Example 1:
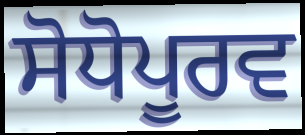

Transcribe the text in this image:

ਸੋਧੋਪੂਰਵ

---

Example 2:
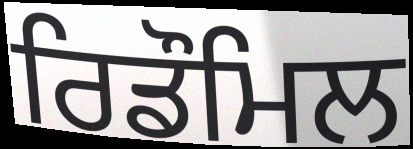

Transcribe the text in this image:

ਰਿਡੌਮਿਲ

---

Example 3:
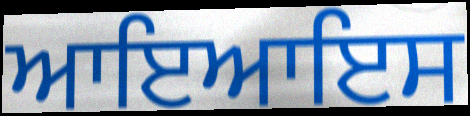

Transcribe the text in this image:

ਆਇਆਇਸ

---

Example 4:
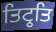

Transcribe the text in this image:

ਤਿਟ੍ਠਤਿ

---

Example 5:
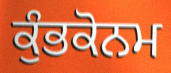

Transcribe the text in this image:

ਕੁੰਭਕੋਨਮ